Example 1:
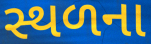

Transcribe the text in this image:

સ્થળના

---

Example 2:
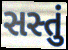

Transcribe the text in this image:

સસ્તું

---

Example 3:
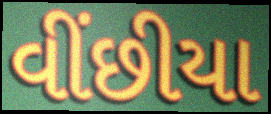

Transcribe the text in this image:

વીંછીયા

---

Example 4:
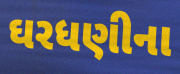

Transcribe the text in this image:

ઘરધણીના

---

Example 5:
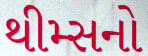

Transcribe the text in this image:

થીમ્સનો